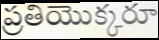
ప్రతియొక్కరూ